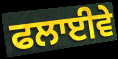
ਫਲਾਈਵੇ